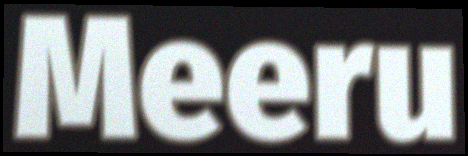
Meeru